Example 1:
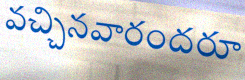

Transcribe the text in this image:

వచ్చినవారందరూ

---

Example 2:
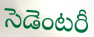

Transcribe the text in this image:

సెడెంటరీ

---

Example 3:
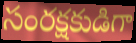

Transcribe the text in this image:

సంరక్షకుడిగా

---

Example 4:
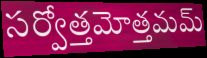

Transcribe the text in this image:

సర్వోత్తమోత్తమమ్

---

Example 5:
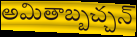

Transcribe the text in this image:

అమితాబ్బచ్చన్